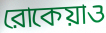
রোকেয়াও